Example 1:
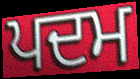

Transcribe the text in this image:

ਪਦਮ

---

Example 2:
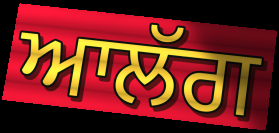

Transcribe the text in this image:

ਆਲੱਗ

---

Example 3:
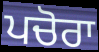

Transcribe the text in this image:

ਪਚੋਰਾ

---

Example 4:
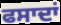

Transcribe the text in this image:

ਫਸਾਦਾਂ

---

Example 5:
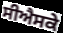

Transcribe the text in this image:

ਸੀਐਸਕੇ